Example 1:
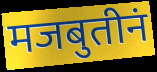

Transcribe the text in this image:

मजबुतीनं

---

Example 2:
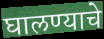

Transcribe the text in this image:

घालण्याचे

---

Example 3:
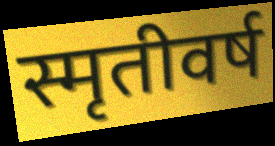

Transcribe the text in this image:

स्मृतीवर्ष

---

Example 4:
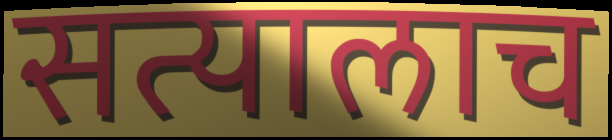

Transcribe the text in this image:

सत्यालाच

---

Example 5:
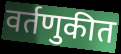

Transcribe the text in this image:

वर्तणुकीत